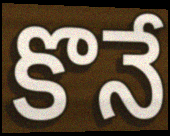
కొనే